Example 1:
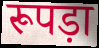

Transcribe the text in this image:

रूपड़ा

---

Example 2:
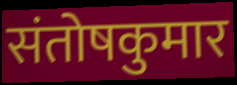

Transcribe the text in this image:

संतोषकुमार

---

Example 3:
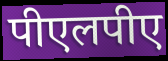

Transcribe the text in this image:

पीएलपीए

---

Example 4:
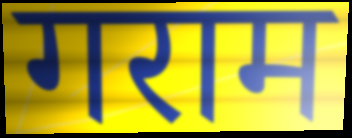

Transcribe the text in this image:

गराम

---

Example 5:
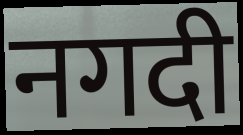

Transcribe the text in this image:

नगदी